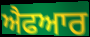
ਐਫਆਰ